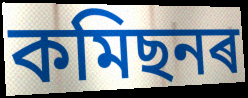
কমিছনৰ